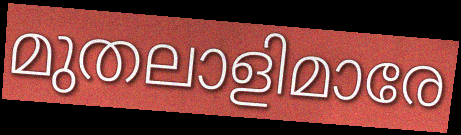
മുതലാളിമാരേ